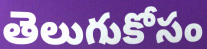
తెలుగుకోసం